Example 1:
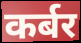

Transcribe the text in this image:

कर्बर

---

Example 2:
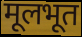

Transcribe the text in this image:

मूलभूत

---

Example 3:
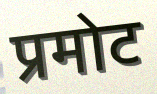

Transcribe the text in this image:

प्रमोट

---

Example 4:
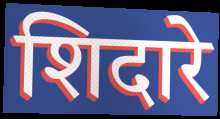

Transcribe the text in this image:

शिदारे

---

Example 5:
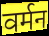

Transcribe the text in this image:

वर्मन